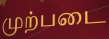
முற்படை